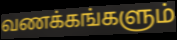
வணக்கங்களும்